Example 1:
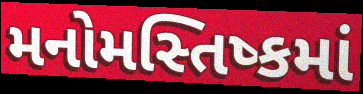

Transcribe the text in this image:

મનોમસ્તિષ્કમાં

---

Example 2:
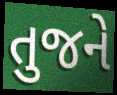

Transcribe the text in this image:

તુજને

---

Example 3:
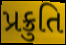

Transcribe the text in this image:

પ્રક્રુતિ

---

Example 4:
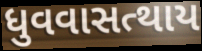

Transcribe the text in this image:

ધુવવાસત્થાય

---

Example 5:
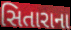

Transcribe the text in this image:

સિતારાના